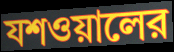
যশওয়ালের